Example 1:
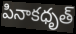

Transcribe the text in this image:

పినాకధృత్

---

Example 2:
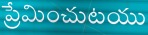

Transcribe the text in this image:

ప్రేమించుటయు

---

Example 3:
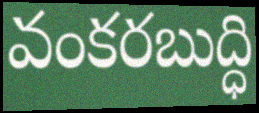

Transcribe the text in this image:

వంకరబుద్ధి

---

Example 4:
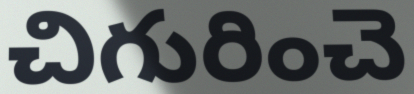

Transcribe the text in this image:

చిగురించె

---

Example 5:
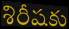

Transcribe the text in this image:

శిరీషకు